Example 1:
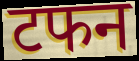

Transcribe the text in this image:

टफन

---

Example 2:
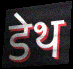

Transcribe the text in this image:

डेथ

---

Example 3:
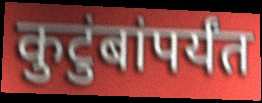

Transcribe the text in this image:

कुटुंबांपर्यंत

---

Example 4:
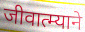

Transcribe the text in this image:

जीवात्म्याने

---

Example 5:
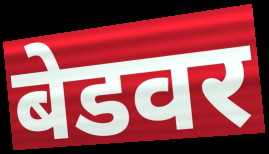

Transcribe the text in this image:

बेडवर